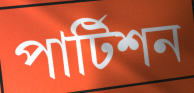
পার্টিশন